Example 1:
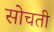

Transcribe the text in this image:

सोचती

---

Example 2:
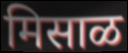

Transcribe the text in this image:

मिसाळ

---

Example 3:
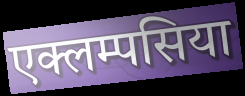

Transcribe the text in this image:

एक्लम्पसिया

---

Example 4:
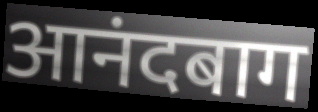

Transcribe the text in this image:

आनंदबाग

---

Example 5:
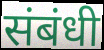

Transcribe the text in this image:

संबंधी